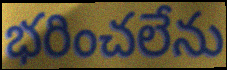
భరించలేను